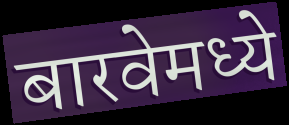
बारवेमध्ये